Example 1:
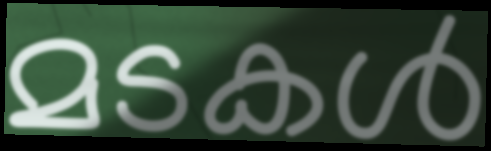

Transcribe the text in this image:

മടകൾ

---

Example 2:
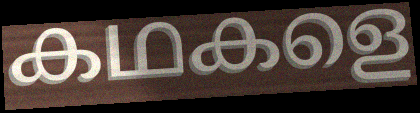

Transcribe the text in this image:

കഥകളെ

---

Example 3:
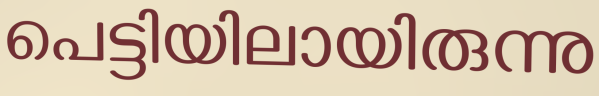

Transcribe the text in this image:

പെട്ടിയിലായിരുന്നു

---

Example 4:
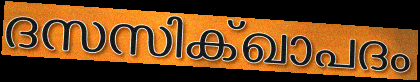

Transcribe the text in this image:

ദസസിക്ഖാപദം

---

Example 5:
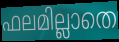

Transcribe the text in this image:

ഫലമില്ലാതെ